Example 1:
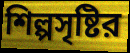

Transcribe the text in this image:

শিল্পসৃষ্টির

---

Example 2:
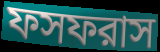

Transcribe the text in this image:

ফসফরাস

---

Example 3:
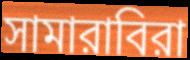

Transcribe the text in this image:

সামারাবিরা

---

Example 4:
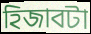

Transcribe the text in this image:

হিজাবটা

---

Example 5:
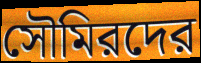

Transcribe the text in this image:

সৌমিরদের